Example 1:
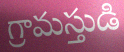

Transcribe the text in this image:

గ్రామస్తుడి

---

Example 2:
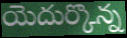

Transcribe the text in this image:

యెదుర్కొన్న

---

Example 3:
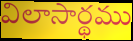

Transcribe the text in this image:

విలాసార్థము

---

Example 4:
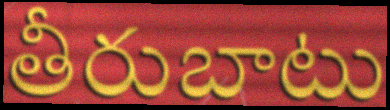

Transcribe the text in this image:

తీరుబాటు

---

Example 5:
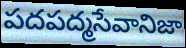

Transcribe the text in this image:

పదపద్మసేవానిజా